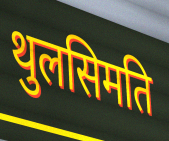
थुलसिमति